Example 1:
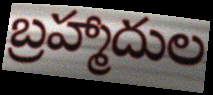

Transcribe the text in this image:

బ్రహ్మాదుల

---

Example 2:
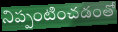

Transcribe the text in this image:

నిప్పంటించడంతో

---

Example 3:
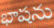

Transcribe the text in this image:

భాషను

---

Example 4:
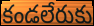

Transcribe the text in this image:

కండలేరుకు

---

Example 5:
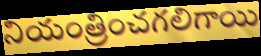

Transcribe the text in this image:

నియంత్రించగలిగాయి